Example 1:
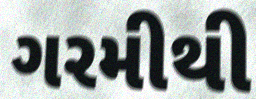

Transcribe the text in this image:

ગરમીથી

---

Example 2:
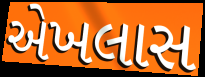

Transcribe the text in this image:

એખલાસ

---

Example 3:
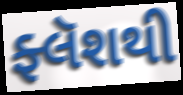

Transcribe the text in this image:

ફ્લૅશથી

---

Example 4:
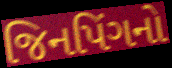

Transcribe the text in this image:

જિનપિંગનો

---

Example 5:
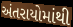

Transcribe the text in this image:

અંતરાયોમાંથી